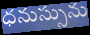
ధనుస్సును